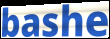
bashe